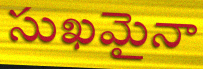
సుఖమైనా